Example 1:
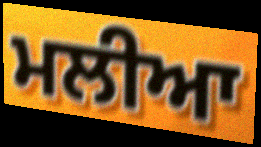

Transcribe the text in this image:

ਮਲੀਆ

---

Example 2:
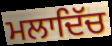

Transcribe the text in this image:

ਮਲਾਦਿੱਚ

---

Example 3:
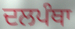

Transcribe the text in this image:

ਦਲਪੰਥਾ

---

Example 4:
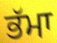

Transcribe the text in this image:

ਭੱਮਾ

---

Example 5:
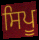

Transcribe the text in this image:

ਸਿਪੂ